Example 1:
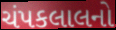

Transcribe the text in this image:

ચંપકલાલનો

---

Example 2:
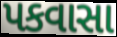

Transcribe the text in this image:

પકવાસા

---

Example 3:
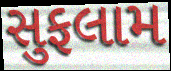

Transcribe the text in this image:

સુફલામ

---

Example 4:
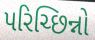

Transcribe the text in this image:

પરિચ્છિન્નો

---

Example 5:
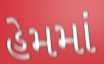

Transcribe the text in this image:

હેમમાં